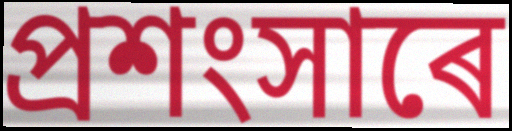
প্ৰশংসাৰে